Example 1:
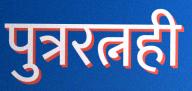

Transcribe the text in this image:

पुत्ररत्नही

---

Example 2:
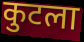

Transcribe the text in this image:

कुटला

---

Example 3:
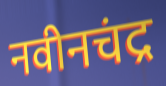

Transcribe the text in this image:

नवीनचंद्र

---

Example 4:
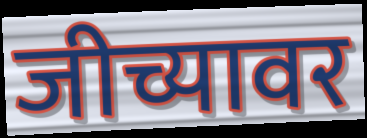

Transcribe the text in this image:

जीच्यावर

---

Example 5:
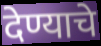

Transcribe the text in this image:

देण्याचे